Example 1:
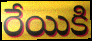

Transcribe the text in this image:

రేయికి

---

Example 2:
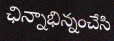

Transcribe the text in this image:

ఛిన్నాభిన్నంచేసి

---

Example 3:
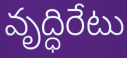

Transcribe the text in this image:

వృద్ధిరేటు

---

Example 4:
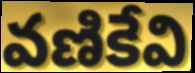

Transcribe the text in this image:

వణికేవి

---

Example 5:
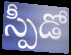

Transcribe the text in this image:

స్పీడో